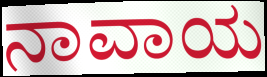
ನಾವಾಯ